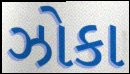
ઝોકા